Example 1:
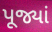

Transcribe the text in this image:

પૂજ્યાં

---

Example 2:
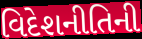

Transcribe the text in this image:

વિદેશનીતિની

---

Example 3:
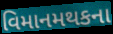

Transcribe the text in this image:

વિમાનમથકના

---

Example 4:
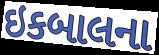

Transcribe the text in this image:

ઇકબાલના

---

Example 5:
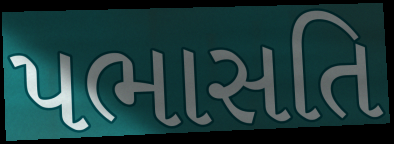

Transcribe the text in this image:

પભાસતિ